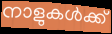
നാളുകൾക്ക്